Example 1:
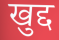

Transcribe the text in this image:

खुद्द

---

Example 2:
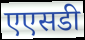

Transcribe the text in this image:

एएसडी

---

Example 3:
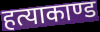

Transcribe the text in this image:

हत्याकाण्ड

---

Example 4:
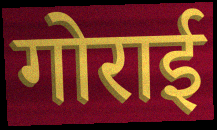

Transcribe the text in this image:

गोराई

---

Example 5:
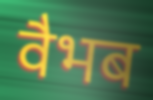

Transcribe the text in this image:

वैभब